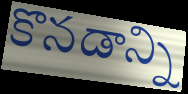
కొనడాన్ని